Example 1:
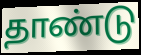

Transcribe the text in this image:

தாண்டு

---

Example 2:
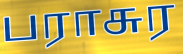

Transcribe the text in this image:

பராசுர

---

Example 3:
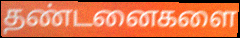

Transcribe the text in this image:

தண்டனைகளை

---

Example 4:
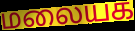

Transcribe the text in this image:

மலையக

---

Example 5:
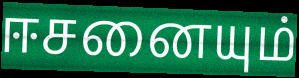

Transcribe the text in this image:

ஈசனையும்